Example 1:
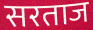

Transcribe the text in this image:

सरताज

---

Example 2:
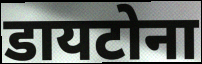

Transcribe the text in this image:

डायटोना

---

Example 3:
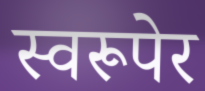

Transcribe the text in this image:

स्वरूपेर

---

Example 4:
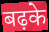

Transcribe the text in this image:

बढ़के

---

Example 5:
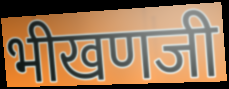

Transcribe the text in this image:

भीखणजी